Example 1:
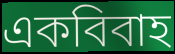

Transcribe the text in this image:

একবিবাহ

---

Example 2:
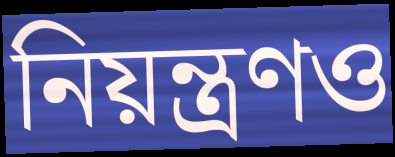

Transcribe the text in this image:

নিয়ন্ত্রণও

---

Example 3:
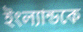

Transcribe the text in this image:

ইংল্যান্ডকে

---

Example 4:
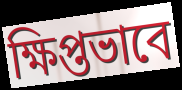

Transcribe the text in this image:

ক্ষিপ্তভাবে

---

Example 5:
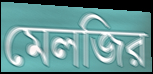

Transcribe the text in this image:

মেলজির